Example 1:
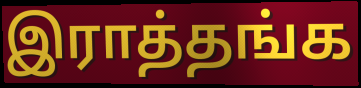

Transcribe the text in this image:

இராத்தங்க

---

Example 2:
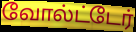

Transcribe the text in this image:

வோல்ட்டேர்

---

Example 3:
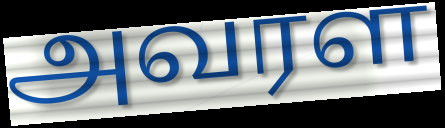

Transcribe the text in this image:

அவரள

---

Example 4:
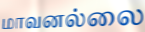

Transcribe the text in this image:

மாவனல்லை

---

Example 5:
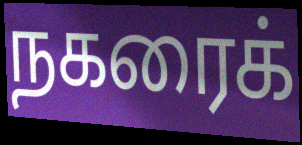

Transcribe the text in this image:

நகரைக்